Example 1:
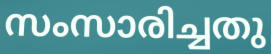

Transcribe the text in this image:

സംസാരിച്ചതു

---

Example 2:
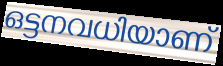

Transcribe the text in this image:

ഒട്ടനവധിയാണ്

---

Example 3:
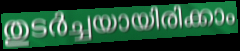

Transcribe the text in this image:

തുടർച്ചയായിരിക്കാം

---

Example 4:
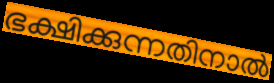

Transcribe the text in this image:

ഭക്ഷിക്കുന്നതിനാൽ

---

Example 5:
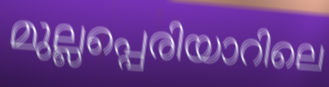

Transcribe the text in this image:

മുല്ലപ്പെരിയാറിലെ